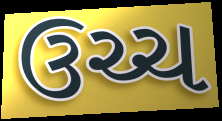
ઉચ્ચ